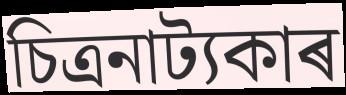
চিত্ৰনাট্যকাৰ